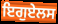
ਇਗੁਏਲਸ